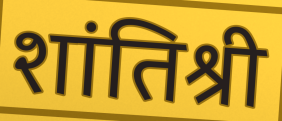
शांतिश्री